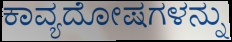
ಕಾವ್ಯದೋಷಗಳನ್ನು